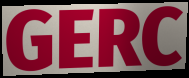
GERC